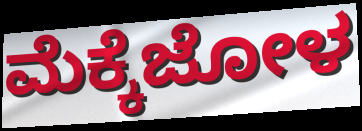
ಮೆಕ್ಕೆಜೋಳ